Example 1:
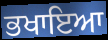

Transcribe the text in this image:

ਭਖਾਇਆ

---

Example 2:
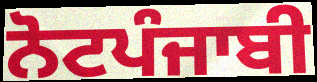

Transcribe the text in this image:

ਨੋਟਪੰਜਾਬੀ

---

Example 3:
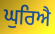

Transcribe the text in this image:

ਘੁਰਿਐ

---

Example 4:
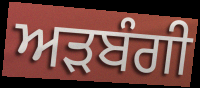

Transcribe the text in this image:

ਅੜਬੰਗੀ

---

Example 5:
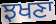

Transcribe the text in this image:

ਝਖਣਾ